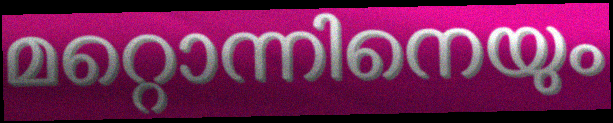
മറ്റൊന്നിനെയും